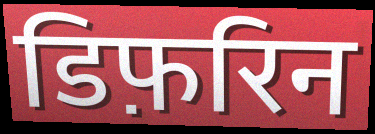
डिफ़रिन